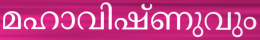
മഹാവിഷ്ണുവും